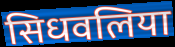
सिधवलिया